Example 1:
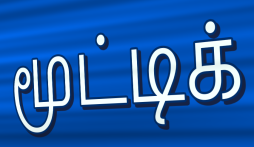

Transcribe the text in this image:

மூட்டிக்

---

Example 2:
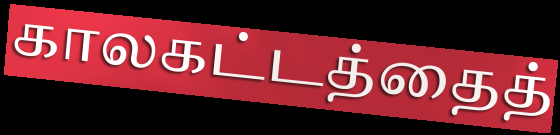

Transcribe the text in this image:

காலகட்டத்தைத்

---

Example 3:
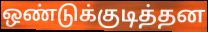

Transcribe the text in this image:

ஒண்டுக்குடித்தன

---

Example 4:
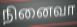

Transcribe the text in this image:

நினைவா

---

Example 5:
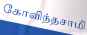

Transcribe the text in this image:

கோவிந்தசாமி